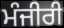
ਮੰਜੀਰੀ